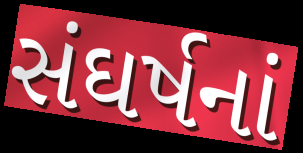
સંઘર્ષનાં